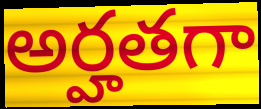
అర్హతగా